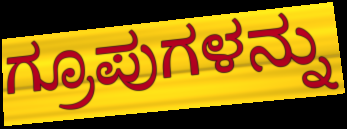
ಗ್ರೂಪುಗಳನ್ನು